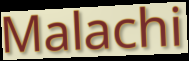
Malachi